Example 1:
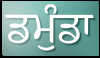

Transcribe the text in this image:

ਡਮੁੰਡਾ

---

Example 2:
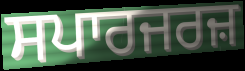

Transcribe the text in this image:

ਸਪਾਰਜਰਜ਼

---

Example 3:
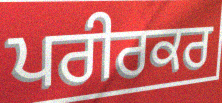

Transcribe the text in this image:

ਪਰੀਰਕਰ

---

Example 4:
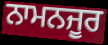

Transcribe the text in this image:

ਨਾਮਨਜੂਰ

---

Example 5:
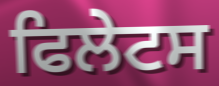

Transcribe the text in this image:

ਫਿਲੇਟਸ